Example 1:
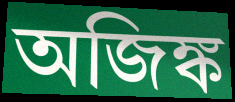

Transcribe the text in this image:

অজিঙ্ক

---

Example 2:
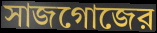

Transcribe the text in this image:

সাজগোজের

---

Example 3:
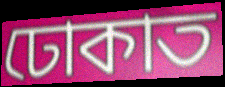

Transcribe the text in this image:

ঢোকাত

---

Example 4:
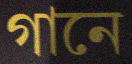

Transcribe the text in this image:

গানে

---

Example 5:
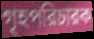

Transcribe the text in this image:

গৃহপরিচারক